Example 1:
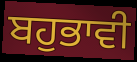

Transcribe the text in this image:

ਬਹੁਭਾਵੀ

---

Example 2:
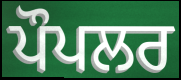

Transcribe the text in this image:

ਪੌਪਲਰ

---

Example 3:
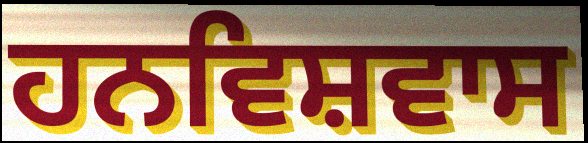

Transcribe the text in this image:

ਹਨਵਿਸ਼ਵਾਸ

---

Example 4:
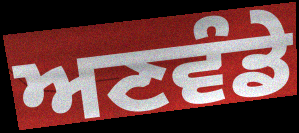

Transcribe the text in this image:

ਅਣਵੰਡੇ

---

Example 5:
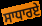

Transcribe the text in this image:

ਸਾਧਾਰਏ